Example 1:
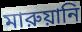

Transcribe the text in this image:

মারুয়ানি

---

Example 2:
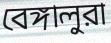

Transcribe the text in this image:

বেঙ্গালুরা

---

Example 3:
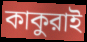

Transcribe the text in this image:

কাকুরাই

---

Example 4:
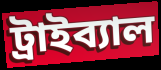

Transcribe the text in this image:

ট্রাইব্যাল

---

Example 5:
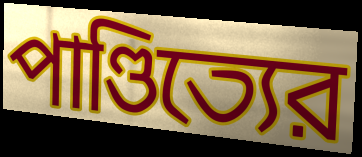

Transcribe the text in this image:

পাণ্ডিত্যের